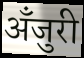
अँजुरी